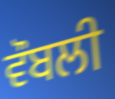
ਵੌਬਲੀ